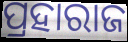
ପ୍ରହାରାଜ